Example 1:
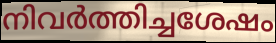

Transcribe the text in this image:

നിവർത്തിച്ചശേഷം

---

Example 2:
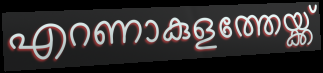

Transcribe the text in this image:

എറണാകുളത്തേയ്ക്ക്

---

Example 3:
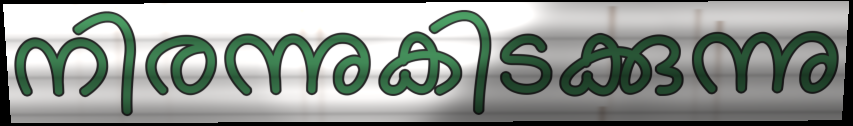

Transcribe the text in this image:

നിരന്നുകിടക്കുന്നു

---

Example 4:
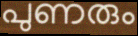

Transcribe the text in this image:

പുണരും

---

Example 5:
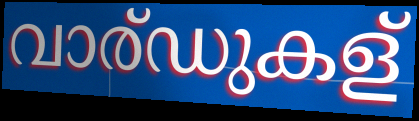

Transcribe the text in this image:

വാര്ഡുകള്